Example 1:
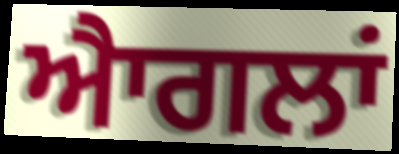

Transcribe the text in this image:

ਐਾਗਲਾਂ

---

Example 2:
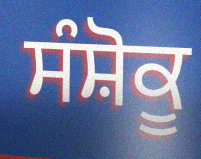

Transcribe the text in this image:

ਸੰਸ਼ੋਕੂ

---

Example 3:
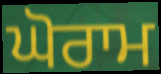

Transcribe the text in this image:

ਘੋਰਾਮ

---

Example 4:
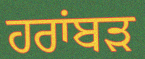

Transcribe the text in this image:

ਹਰਾਂਬੜ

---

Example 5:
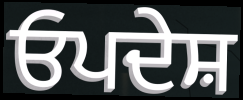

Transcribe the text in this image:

ਓਪਦੇਸ਼